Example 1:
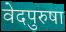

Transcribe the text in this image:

वेदपुरुषा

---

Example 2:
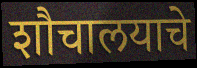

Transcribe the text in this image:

शौचालयाचे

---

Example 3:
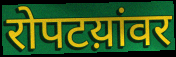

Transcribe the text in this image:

रोपटय़ांवर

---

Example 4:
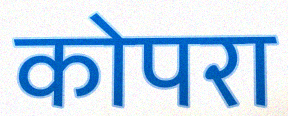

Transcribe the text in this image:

कोपरा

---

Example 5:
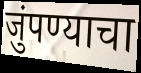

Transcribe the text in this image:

जुंपण्याचा